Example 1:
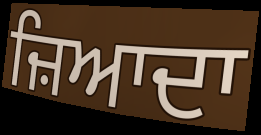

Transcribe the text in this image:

ਜ਼ਿਆਦਾ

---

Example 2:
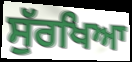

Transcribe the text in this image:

ਸੁੱਰਖਿਆ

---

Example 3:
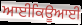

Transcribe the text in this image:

ਆਈਕਿਊਆਈ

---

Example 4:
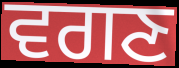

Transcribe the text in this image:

ਵਗਣ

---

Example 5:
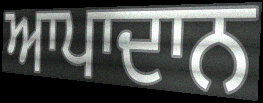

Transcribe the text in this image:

ਆਪਾਦਾਨ